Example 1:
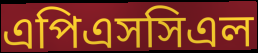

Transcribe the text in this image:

এপিএসসিএল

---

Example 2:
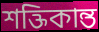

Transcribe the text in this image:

শক্তিকান্ত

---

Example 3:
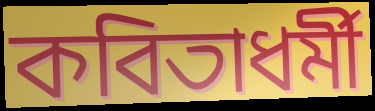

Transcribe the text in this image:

কবিতাধর্মী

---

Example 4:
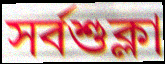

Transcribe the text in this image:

সর্বশুক্লা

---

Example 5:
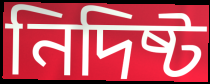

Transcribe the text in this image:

নিদিষ্ট